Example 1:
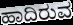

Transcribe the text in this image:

ಹಾದಿರುವ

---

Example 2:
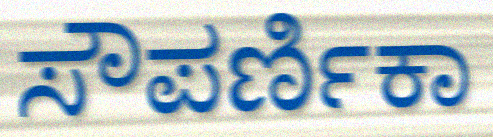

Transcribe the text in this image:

ಸೌಪರ್ಣಿಕಾ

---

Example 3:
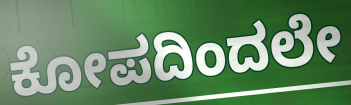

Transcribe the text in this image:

ಕೋಪದಿಂದಲೇ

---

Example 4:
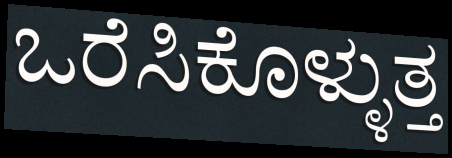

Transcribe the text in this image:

ಒರೆಸಿಕೊಳ್ಳುತ್ತ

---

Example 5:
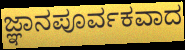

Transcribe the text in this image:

ಜ್ಞಾನಪೂರ್ವಕವಾದ